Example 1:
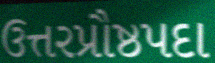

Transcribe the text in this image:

ઉત્તરપ્રૌષ્ઠપદા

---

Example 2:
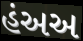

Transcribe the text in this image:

હંઅઅ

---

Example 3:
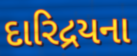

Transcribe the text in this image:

દારિદ્રયના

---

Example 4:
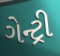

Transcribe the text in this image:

ગેન્ટ્રી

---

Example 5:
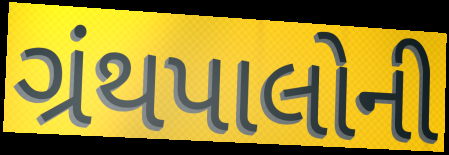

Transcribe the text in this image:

ગ્રંથપાલોની